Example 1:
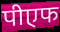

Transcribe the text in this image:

पीएफ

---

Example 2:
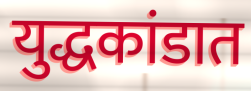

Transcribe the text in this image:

युद्धकांडात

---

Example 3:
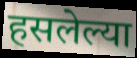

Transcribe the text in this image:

हसलेल्या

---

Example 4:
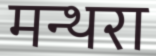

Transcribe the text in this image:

मन्थरा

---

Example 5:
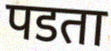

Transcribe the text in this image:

पडता